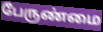
பேருண்மை